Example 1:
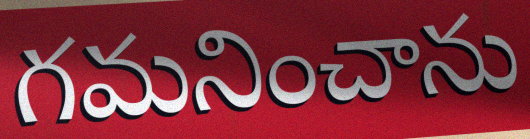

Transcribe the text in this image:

గమనించాను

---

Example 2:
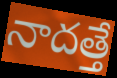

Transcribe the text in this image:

నాదత్తే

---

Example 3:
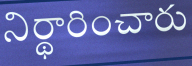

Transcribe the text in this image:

నిర్థారించారు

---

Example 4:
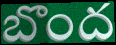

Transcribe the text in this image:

బొంద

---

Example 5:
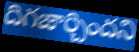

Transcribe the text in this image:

దిగజార్చిందని